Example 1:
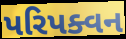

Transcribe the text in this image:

પરિપક્વન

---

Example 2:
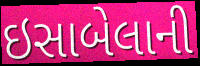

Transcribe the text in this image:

ઇસાબેલાની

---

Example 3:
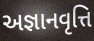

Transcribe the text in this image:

અજ્ઞાનવૃત્તિ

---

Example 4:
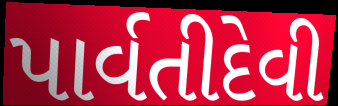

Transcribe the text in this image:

પાર્વતીદેવી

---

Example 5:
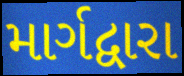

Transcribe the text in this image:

માર્ગદ્વારા